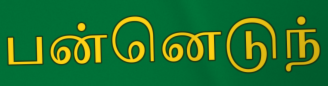
பன்னெடுந்